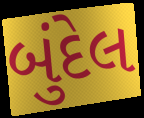
બુંદેલ